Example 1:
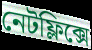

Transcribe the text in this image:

নেটফ্লিক্সে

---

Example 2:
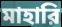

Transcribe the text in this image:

মাহারি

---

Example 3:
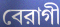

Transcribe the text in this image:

বেরাগী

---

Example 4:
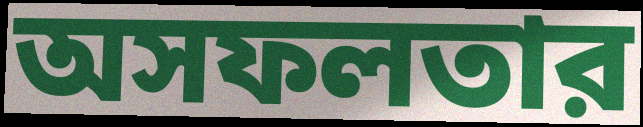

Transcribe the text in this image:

অসফলতার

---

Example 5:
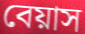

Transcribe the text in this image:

বেয়াস